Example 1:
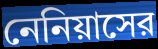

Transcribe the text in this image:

নেনিয়াসের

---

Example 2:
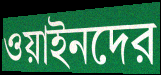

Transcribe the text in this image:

ওয়াইনদের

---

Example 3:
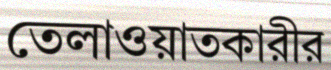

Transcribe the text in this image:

তেলাওয়াতকারীর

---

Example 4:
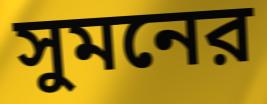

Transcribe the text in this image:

সুমনের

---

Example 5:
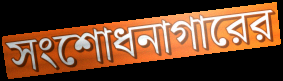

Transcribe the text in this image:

সংশোধনাগারের